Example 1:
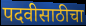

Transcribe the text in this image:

पदवीसाठीचा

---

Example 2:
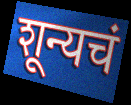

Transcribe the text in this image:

शून्यचं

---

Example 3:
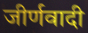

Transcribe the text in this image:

जीर्णवादी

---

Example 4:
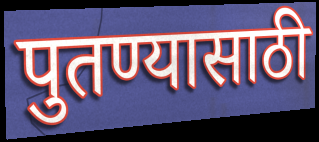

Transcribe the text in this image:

पुतण्यासाठी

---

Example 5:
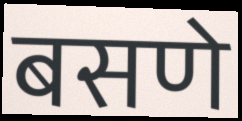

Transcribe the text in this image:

बसणे